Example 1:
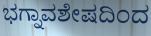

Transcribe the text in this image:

ಭಗ್ನಾವಶೇಷದಿಂದ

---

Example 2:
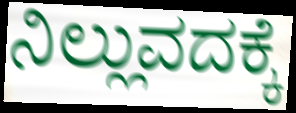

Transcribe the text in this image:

ನಿಲ್ಲುವದಕ್ಕೆ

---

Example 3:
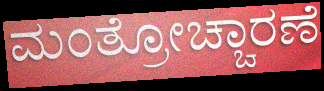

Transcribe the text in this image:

ಮಂತ್ರೋಚ್ಚಾರಣೆ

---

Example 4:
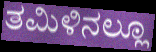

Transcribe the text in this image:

ತಮಿಳಿನಲ್ಲೂ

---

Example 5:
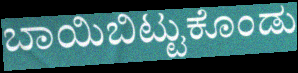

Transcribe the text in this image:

ಬಾಯಿಬಿಟ್ಟುಕೊಂಡು